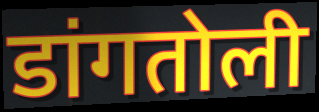
डांगतोली